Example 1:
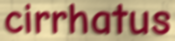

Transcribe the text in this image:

cirrhatus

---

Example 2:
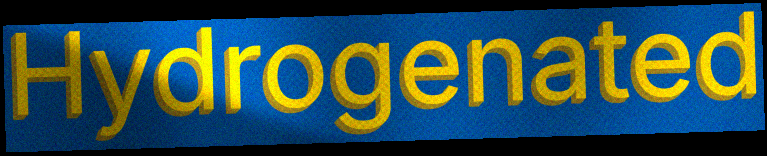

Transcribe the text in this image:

Hydrogenated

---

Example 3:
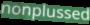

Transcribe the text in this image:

nonplussed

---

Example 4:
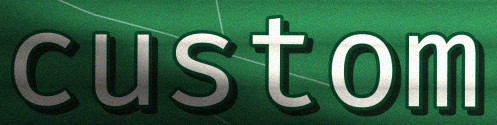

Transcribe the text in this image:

custom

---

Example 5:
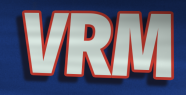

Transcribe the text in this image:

VRM